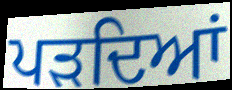
ਪੜਦਿਆਂ